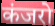
कंजरो